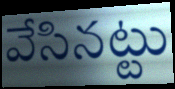
వేసినట్టు